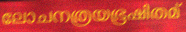
ലോചനത്രയഭൂഷിതമ്